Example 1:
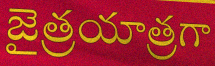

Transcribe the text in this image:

జైత్రయాత్రగా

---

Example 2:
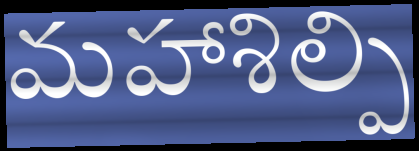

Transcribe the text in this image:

మహాశిల్పి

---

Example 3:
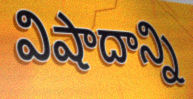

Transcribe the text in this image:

విషాదాన్ని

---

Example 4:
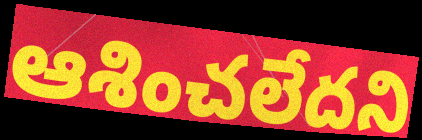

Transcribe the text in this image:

ఆశించలేదని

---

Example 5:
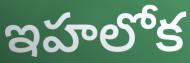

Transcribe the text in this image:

ఇహలోక